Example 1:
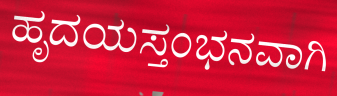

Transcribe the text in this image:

ಹೃದಯಸ್ತಂಭನವಾಗಿ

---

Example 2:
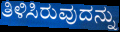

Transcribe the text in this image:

ತಿಳಿಸಿರುವುದನ್ನು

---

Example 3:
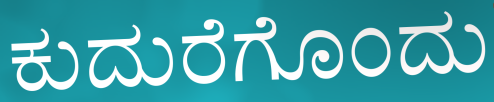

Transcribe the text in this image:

ಕುದುರೆಗೊಂದು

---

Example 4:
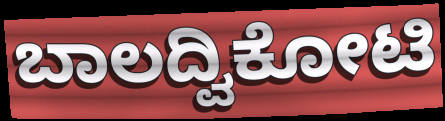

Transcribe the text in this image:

ಬಾಲದ್ವಿಕೋಟಿ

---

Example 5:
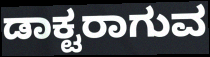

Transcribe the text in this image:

ಡಾಕ್ಟರಾಗುವ